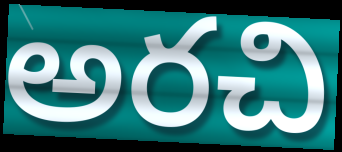
అరచి